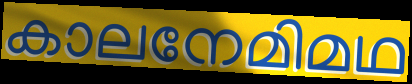
കാലനേമിമഥ